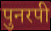
पुनरपी